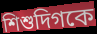
শিশুদিগকে